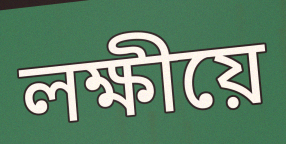
লক্ষীয়ে